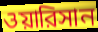
ওয়ারিসান